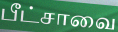
பீட்சாவை